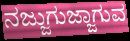
ನಜ್ಜುಗುಜ್ಜಾಗುವ